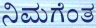
ನಿಮಗೆಂತ